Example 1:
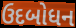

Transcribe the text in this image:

ઉદબોધન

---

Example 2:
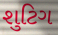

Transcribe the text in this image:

શુટિગ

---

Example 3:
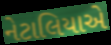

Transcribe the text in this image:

નેટાલિયાએ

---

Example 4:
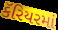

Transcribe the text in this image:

કૅરિયરમાં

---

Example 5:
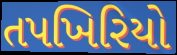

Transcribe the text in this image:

તપખિરિયો